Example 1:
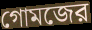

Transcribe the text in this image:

গোমজের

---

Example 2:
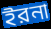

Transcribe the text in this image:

ইরনা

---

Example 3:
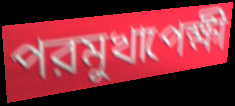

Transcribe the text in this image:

পরমুখাপেক্ষী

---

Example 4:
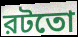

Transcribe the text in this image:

রটতো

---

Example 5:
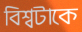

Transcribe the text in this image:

বিশ্বটাকে